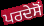
ਪਰਦੇਸੋਂ